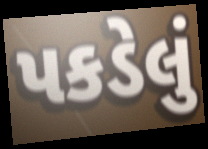
પકડેલું